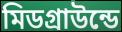
মিডগ্রাউন্ডে